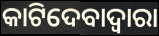
କାଟିଦେବାଦ୍ଵାରା